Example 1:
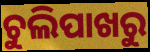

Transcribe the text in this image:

ଚୁଲିପାଖରୁ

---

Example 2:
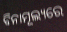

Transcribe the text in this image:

ବିନାମୂଲ୍ୟରେ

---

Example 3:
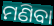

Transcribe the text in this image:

ମଣିବା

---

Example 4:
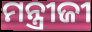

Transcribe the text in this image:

ମନ୍ତ୍ରୀଜୀ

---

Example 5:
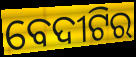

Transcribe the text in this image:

ବେଦୀଟିର